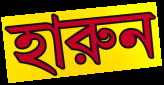
হারুন